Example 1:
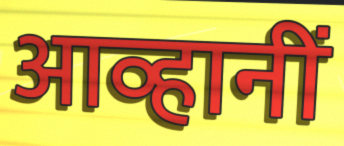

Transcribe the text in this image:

आव्हानीं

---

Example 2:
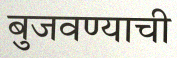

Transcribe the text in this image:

बुजवण्याची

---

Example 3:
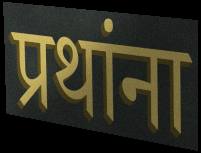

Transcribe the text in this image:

प्रथांना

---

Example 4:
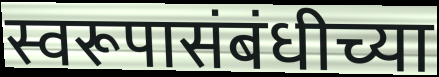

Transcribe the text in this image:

स्वरूपासंबंधीच्या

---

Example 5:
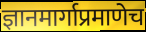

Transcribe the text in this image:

ज्ञानमार्गाप्रमाणेच